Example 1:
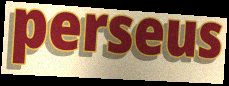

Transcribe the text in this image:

perseus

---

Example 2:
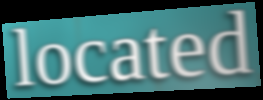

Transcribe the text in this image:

located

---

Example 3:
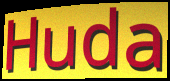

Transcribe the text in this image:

Huda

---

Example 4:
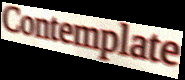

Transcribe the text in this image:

Contemplate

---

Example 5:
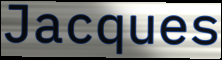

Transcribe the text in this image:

Jacques